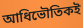
আধিভৌতিকই